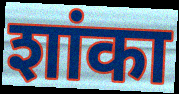
शांका